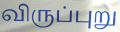
விருப்புறு